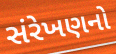
સંરેખણનો